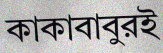
কাকাবাবুরই